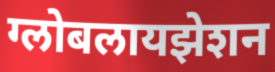
ग्लोबलायझेशन